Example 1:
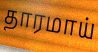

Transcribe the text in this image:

தாரமாய்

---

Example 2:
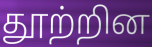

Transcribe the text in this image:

தூற்றின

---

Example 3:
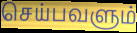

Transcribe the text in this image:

செய்பவளும்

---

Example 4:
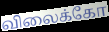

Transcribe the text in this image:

விலைக்கோ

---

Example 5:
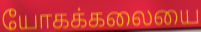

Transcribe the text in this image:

யோகக்கலையை